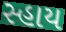
સ્હાય